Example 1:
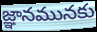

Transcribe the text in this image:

జ్ఞానమునకు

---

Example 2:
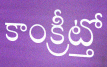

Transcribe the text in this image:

కాంక్రీట్తో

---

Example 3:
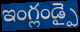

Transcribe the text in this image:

ఇంగ్లండ్పై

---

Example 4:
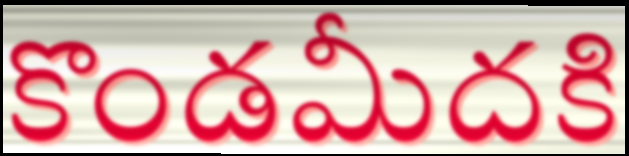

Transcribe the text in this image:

కొండమీదకి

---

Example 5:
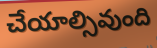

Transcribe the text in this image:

చేయాల్సివుంది